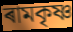
ৰামকৃষ্ণ